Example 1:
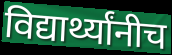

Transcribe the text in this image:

विद्यार्थ्यांनीच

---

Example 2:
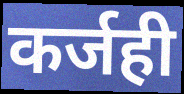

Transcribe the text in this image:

कर्जही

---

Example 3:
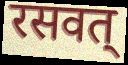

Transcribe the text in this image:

रसवत्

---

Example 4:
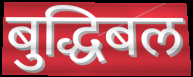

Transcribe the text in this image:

बुद्धिबल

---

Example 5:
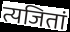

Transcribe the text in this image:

त्यजितां